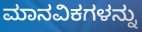
ಮಾನವಿಕಗಳನ್ನು